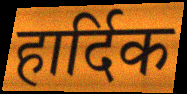
हार्दिक